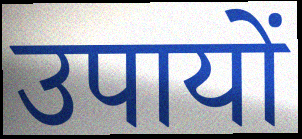
उपायों